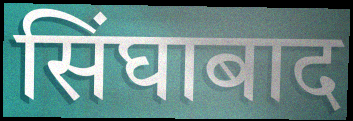
सिंघाबाद